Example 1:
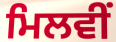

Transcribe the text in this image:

ਮਿਲਵੀਂ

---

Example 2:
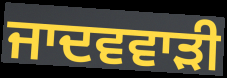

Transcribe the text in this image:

ਜਾਦਵਵਾੜੀ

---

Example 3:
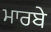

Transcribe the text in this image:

ਮਾਰਬੇ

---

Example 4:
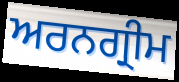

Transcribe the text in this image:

ਅਰਨਗ੍ਰੀਮ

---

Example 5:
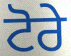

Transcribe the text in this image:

ਟੋਰੇ